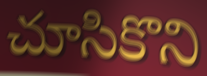
చూసికొని